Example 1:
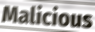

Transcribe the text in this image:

Malicious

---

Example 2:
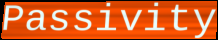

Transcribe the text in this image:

Passivity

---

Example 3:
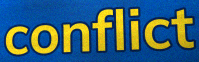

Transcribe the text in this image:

conflict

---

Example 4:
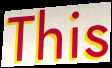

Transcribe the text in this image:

This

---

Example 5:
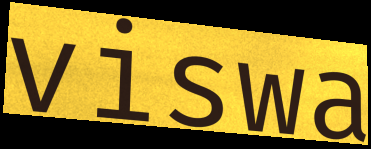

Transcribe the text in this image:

viswa